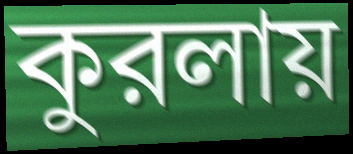
কুরলায়